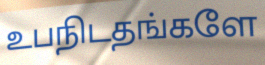
உபநிடதங்களே